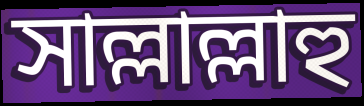
সাল্লাল্লাহু